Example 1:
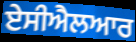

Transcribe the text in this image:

ਏਸੀਐਲਆਰ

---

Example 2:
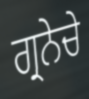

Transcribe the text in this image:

ਗ੍ਰਨੇਚੇ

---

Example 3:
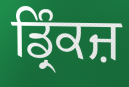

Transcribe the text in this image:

ਡ੍ਰਿੰਕਜ਼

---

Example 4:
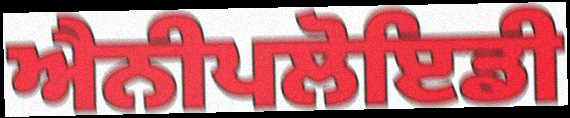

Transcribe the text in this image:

ਐਨੀਪਲੋਇਡੀ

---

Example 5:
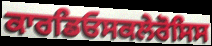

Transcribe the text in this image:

ਕਾਰਡਿਓਸਕਲੇਰੋਸਿਸ